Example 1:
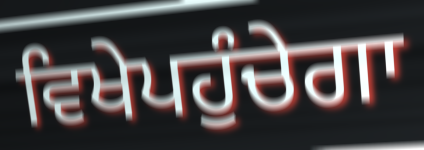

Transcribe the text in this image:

ਵਿਖੇਪਹੁੰਚੇਗਾ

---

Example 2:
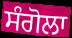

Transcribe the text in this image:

ਸੰਗੋਲਾ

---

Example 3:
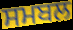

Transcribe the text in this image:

ਸਮਬਲ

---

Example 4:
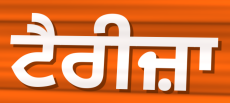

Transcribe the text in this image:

ਟੈਰੀਜ਼ਾ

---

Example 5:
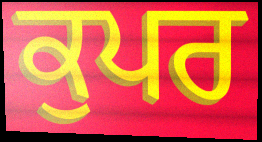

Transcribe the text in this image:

ਕੁਪਰ